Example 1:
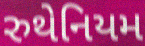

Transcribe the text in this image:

રુથેનિયમ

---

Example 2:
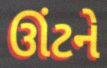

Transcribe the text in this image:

ઊંટને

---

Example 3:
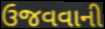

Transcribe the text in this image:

ઉજવવાની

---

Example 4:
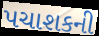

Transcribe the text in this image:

પચાશકની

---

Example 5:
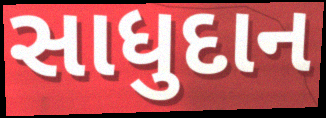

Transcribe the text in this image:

સાધુદાન